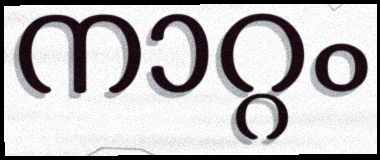
നാറ്റം